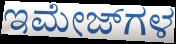
ಇಮೇಜ್‌ಗಳ